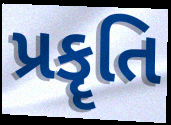
પ્રકૄતિ